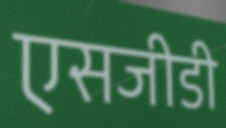
एसजीडी